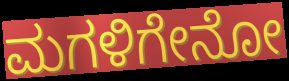
ಮಗಳಿಗೇನೋ